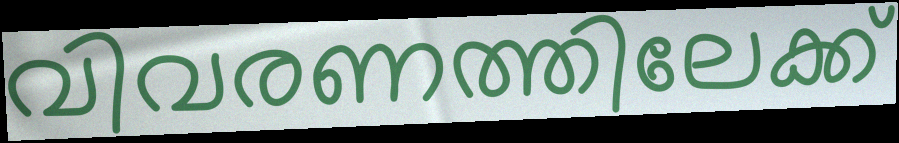
വിവരണത്തിലേക്ക്